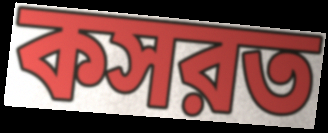
কসরত